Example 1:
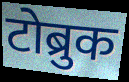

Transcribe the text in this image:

टोब्रुक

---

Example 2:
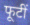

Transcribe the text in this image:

फूटीं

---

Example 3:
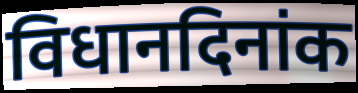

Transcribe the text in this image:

विधानदिनांक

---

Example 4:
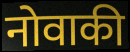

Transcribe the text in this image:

नोवाकी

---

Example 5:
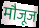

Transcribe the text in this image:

मौजूज